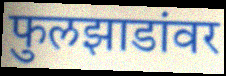
फुलझाडांवर